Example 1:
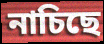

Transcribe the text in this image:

নাচিছে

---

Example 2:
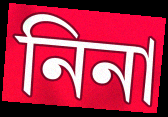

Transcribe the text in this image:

নিনা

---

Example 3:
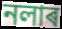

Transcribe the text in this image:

নলাৰ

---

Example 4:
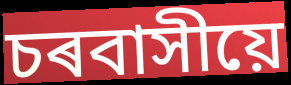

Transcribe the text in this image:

চৰবাসীয়ে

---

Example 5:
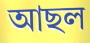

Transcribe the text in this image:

আছল